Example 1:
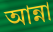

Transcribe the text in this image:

আন্না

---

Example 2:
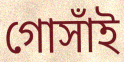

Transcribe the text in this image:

গোসাঁই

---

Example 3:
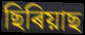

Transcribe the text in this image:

ছিৰিয়াছ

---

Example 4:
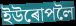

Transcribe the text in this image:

ইউৰোপলৈ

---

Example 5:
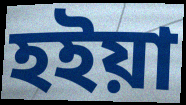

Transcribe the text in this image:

হইয়া